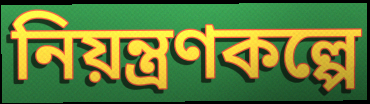
নিয়ন্ত্রণকল্পে